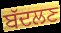
ਬੱਦਲਣ